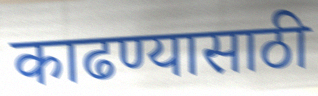
काढण्यासाठी